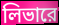
লিভারে